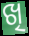
ଖି